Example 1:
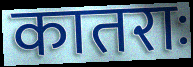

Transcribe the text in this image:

कातराः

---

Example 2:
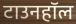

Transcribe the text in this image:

टाउनहॉल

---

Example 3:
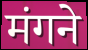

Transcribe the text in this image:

मंगने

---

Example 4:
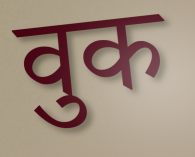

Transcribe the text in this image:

वुक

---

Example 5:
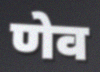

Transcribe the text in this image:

णेव